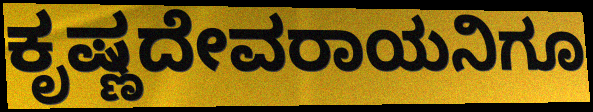
ಕೃಷ್ಣದೇವರಾಯನಿಗೂ